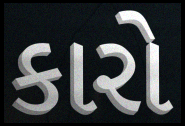
કારો